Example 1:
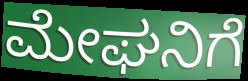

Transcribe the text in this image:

ಮೇಘನಿಗೆ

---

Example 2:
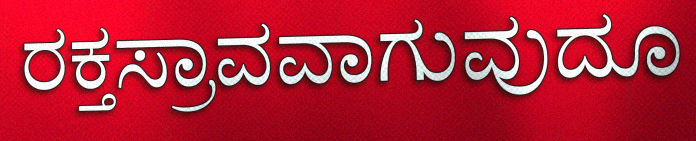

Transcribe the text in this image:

ರಕ್ತಸ್ರಾವವಾಗುವುದೂ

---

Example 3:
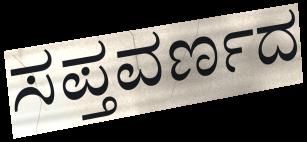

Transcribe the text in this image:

ಸಪ್ತವರ್ಣದ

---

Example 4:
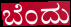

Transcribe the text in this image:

ಬೆಂದು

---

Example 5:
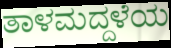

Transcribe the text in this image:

ತಾಳಮದ್ದಳೆಯ